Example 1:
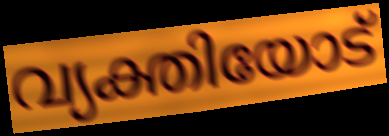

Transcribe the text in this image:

വ്യക്തിയോട്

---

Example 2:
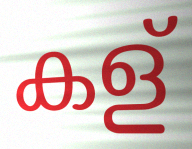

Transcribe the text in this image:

കള്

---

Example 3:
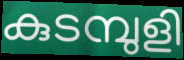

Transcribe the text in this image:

കുടമ്പുളി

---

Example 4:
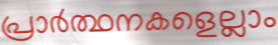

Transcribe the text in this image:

പ്രാർത്ഥനകളെല്ലാം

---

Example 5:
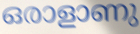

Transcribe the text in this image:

ഒരാളാണു